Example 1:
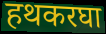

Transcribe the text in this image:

हथकरघा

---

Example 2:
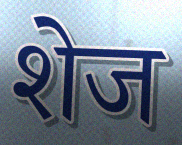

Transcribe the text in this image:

शेज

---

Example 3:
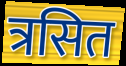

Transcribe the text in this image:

त्रसित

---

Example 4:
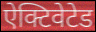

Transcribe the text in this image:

ऐक्टिवेटेड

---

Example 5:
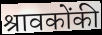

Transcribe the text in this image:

श्रावकोंकी